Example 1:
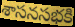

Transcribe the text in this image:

శాసనసభకి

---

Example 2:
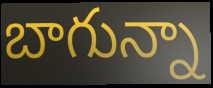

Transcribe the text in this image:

బాగున్నా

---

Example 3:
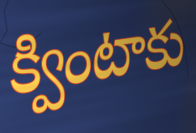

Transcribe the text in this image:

క్వింటాకు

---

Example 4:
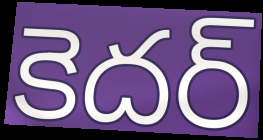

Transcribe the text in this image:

కెదర్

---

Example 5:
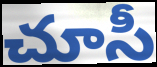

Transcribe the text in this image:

చూసీ